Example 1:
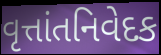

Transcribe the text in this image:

વૃત્તાંતનિવેદક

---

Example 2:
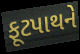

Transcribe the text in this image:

ફૂટપાથને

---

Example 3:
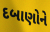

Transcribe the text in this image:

દબાણોને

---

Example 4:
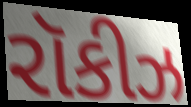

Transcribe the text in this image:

રૉકીઝ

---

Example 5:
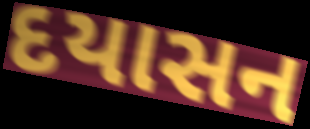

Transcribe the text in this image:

દયાસન